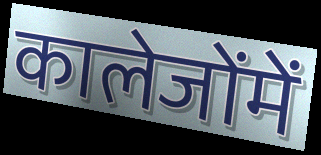
कालेजोंमें